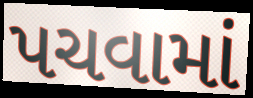
પચવામાં